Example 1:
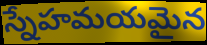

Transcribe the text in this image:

స్నేహమయమైన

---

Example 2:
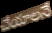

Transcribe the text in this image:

చేయాలనే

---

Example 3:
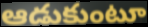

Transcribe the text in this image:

ఆడుకుంటూ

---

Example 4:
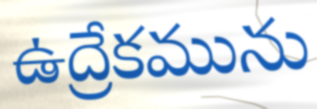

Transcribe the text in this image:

ఉద్రేకమును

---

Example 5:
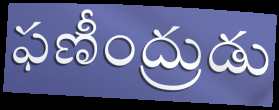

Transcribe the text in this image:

ఫణీంద్రుడు